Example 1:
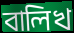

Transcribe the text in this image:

বালিখ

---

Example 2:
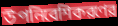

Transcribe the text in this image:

উপনিবেশিকরণের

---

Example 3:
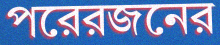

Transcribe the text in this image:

পরেরজনের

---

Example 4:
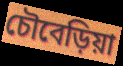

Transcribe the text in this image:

চৌবেড়িয়া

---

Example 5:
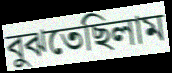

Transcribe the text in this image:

বুঝতেছিলাম